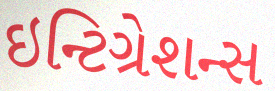
ઇન્ટિગ્રેશન્સ